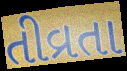
તીવ્રતા